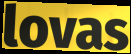
lovas